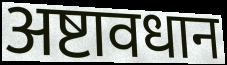
अष्टावधान